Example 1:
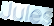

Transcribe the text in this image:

Jules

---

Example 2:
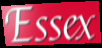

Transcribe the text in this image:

Essex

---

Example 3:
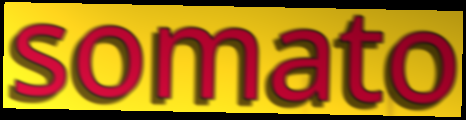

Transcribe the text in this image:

somato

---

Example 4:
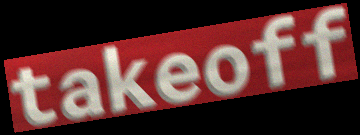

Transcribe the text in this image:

takeoff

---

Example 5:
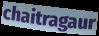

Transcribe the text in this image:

chaitragaur